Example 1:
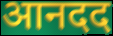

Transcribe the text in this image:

आनदद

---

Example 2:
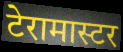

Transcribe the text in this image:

टेरामास्टर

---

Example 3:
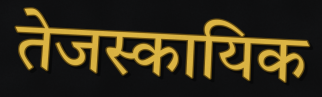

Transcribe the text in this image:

तेजस्कायिक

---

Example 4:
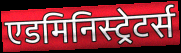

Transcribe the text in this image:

एडमिनिस्ट्रेटर्स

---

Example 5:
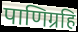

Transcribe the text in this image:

पाणिग्रहि